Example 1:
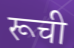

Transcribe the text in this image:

रूची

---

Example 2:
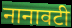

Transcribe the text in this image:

नानावटी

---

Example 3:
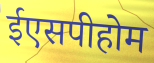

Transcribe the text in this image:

ईएसपीहोम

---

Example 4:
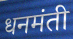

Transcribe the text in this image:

धनमंती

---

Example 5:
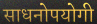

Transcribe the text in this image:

साधनोपयोगी